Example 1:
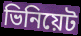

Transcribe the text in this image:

ভিনিয়েট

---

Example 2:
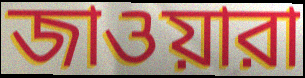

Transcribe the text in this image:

জাওয়ারা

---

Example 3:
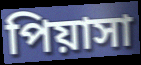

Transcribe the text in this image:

পিয়াসা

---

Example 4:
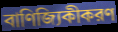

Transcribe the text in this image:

বাণিজ্যিকীকরণ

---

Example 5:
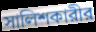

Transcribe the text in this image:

সালিশকারীর